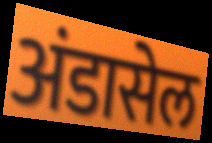
अंडासेल